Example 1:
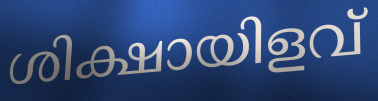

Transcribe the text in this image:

ശിക്ഷായിളവ്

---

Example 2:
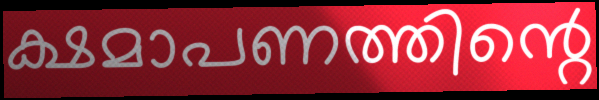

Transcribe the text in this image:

ക്ഷമാപണത്തിന്റെ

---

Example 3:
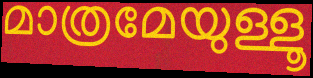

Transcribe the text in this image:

മാത്രമേയുള്ളൂ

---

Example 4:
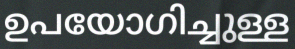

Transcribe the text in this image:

ഉപയോഗിച്ചുള്ള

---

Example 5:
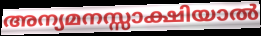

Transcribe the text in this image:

അന്യമനസ്സാക്ഷിയാൽ